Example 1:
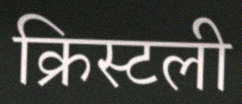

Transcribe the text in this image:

क्रिस्टली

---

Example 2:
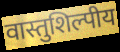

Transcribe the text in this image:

वास्तुशिल्पीय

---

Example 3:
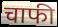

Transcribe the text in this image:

चाफी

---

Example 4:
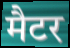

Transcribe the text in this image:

मैटर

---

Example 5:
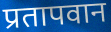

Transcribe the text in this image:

प्रतापवान